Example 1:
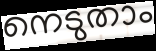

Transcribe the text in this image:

നെടുതാം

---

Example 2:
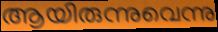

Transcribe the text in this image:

ആയിരുന്നുവെന്നു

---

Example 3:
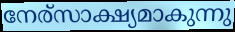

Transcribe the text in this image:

നേര്സാക്ഷ്യമാകുന്നു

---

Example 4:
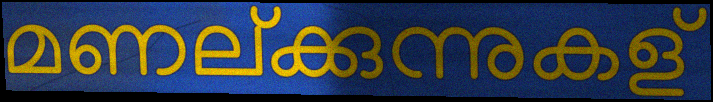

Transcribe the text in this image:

മണല്ക്കുന്നുകള്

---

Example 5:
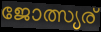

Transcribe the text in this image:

ജോത്സ്യര്